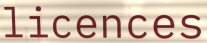
licences